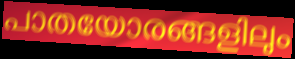
പാതയോരങ്ങളിലും